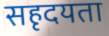
सहृदयता